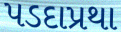
પડદાપ્રથા